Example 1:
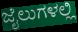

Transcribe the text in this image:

ಜೈಲುಗಳಲ್ಲಿ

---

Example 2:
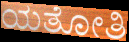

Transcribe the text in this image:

ಯತೋತಿ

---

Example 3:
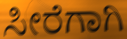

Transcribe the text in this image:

ಸೀರೆಗಾಗಿ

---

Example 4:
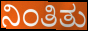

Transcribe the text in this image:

ನಿಂತಿತು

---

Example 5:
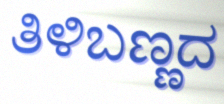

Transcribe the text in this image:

ತಿಳಿಬಣ್ಣದ